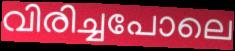
വിരിച്ചപോലെ